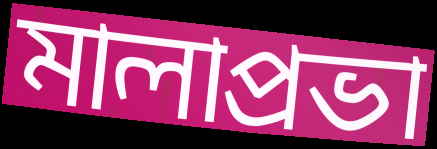
মালাপ্রভা